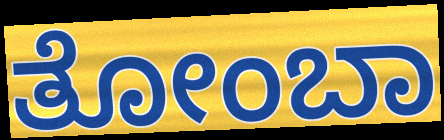
ತೋಂಬಾ